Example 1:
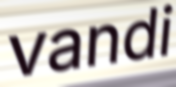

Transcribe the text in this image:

vandi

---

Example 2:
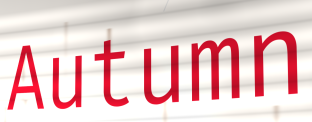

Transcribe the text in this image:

Autumn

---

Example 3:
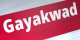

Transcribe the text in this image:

Gayakwad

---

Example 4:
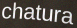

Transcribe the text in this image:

chatura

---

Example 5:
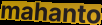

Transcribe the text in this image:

mahanto